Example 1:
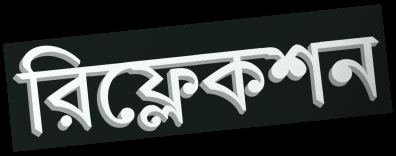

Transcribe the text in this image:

রিফ্লেকশন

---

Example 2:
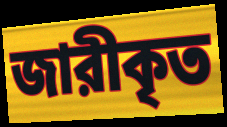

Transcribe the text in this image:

জারীকৃত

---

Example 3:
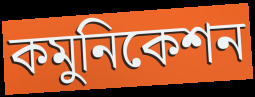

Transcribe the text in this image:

কমুনিকেশন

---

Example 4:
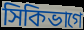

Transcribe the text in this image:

সিকিভাগে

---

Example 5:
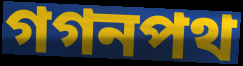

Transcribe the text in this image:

গগনপথ